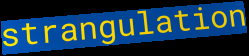
strangulation